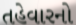
તહેવારનો